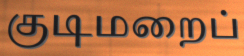
குடிமறைப்